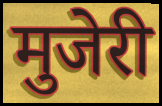
मुजेरी